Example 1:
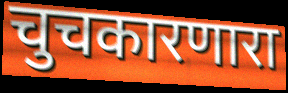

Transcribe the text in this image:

चुचकारणारा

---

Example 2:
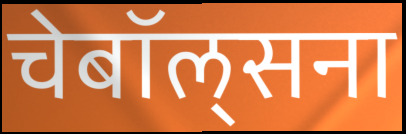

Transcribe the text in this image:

चेबॉल्सना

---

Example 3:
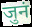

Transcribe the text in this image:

जुनं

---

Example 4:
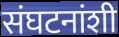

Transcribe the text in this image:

संघटनांशी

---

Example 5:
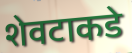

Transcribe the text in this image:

शेवटाकडे